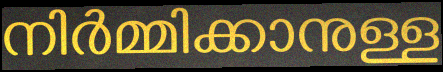
നിർമ്മിക്കാനുള്ള